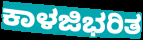
ಕಾಳಜಿಭರಿತ